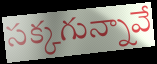
సక్కగున్నావే